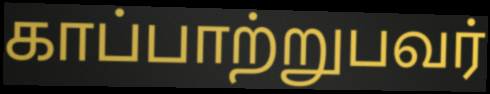
காப்பாற்றுபவர்